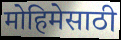
मोहिमेसाठी